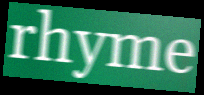
rhyme